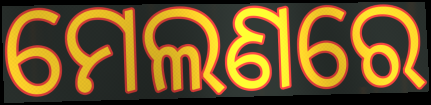
ମେଲଣରେ